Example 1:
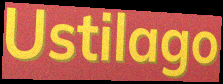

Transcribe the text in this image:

Ustilago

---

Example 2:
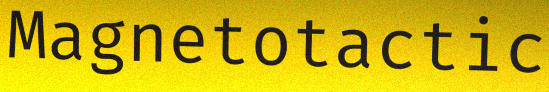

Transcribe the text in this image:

Magnetotactic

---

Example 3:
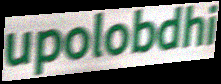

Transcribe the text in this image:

upolobdhi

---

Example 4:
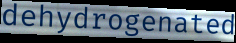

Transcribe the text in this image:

dehydrogenated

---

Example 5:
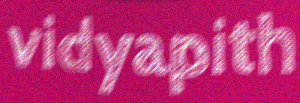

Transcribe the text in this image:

vidyapith